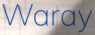
Waray